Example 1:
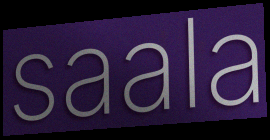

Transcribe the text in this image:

saala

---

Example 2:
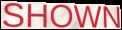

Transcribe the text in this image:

SHOWN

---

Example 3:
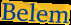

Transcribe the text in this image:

Belem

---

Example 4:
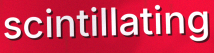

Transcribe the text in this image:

scintillating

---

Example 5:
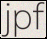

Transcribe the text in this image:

jpf